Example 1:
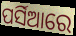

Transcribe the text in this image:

ପର୍ସିଆରେ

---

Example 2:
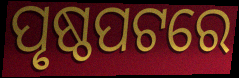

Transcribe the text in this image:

ପୃଷ୍ଠପଟରେ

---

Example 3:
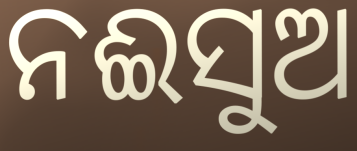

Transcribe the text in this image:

ନଈସୁଅ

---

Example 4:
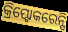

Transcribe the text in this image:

କ୍ରିପ୍ଟୋକରେନ୍ସି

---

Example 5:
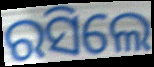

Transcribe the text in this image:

ରସିଲେ